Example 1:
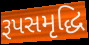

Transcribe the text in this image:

રૂપસમૃદ્ધિ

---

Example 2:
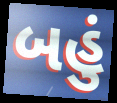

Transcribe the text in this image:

બહું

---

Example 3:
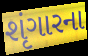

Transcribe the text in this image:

શૃંગારના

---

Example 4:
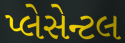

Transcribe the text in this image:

પ્લેસેન્ટલ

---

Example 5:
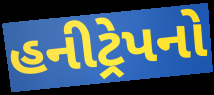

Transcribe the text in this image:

હનીટ્રેપનો